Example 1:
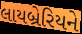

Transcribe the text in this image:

લાયબ્રેરિયને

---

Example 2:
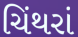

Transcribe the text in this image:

ચિંથરાં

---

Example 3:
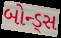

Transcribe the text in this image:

બોન્ડ્સ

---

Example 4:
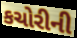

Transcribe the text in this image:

કચોરીની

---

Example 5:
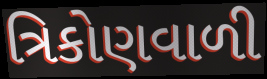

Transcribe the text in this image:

ત્રિકોણવાળી